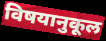
विषयानुकूल